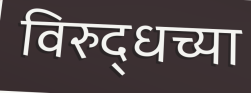
विरुद्धच्या